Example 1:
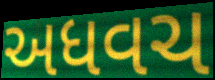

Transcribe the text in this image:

અધવચ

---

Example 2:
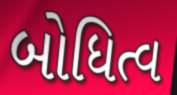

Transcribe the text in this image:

બોધિત્વ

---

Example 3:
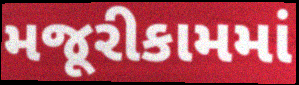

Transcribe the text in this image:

મજૂરીકામમાં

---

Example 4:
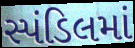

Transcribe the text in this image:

સ્પંડિલમાં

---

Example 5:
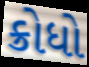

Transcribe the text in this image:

ક્રોધો